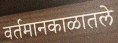
वर्तमानकाळातले